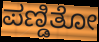
ಪಣ್ಡಿತೋ